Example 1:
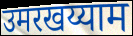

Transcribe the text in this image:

उमरखय्याम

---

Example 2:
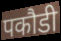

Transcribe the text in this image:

पकौडी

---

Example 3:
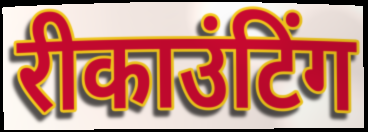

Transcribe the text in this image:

रीकाउंटिंग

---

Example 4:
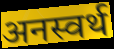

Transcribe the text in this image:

अनस्वर्थ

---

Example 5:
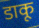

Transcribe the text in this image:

डाकू